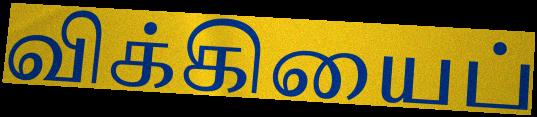
விக்கியைப்